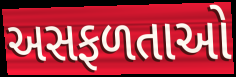
અસફળતાઓ